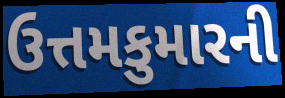
ઉત્તમકુમારની